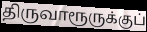
திருவாரூருக்குப்